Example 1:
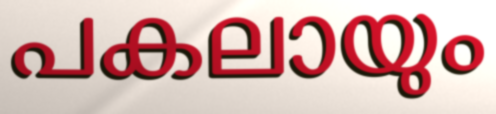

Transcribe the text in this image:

പകലായും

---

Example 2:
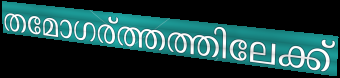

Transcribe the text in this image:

തമോഗര്ത്തത്തിലേക്ക്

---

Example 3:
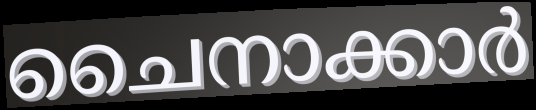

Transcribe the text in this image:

ചൈനാക്കാർ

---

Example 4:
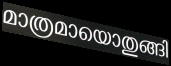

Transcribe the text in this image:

മാത്രമായൊതുങ്ങി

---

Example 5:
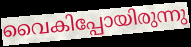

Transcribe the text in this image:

വൈകിപ്പോയിരുന്നു